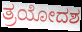
ತ್ರಯೋದಶ